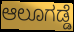
ಆಲೂಗಡ್ಡೆ